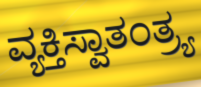
ವ್ಯಕ್ತಿಸ್ವಾತಂತ್ರ್ಯ